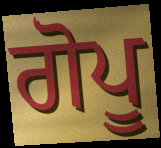
ਗੋਪੂ